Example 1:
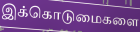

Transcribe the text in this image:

இக்கொடுமைகளை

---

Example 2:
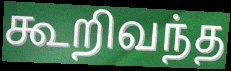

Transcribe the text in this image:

கூறிவந்த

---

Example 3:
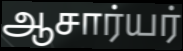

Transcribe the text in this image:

ஆசார்யர்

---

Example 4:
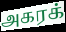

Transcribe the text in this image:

அகரக்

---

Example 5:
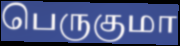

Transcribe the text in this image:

பெருகுமா